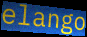
elango